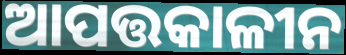
ଆପତ୍ତକାଳୀନ